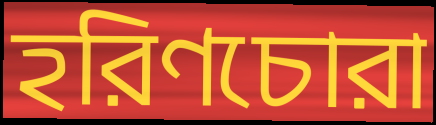
হরিণচোরা